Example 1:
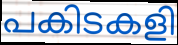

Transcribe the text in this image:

പകിടകളി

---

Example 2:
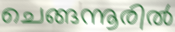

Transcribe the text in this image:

ചെങ്ങന്നൂരിൽ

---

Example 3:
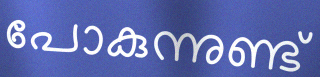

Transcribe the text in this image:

പോകുന്നുണ്ട്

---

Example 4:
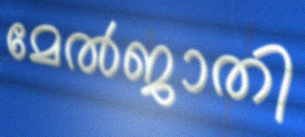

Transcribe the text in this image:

മേൽജാതി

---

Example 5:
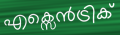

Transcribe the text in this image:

എക്സെൻട്രിക്